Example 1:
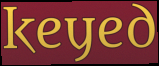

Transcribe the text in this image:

keyed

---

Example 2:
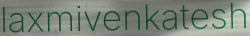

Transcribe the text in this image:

laxmivenkatesh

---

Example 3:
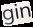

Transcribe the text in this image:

gin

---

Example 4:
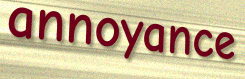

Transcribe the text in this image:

annoyance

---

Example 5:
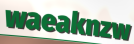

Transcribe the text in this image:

waeaknzw